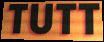
TUTT